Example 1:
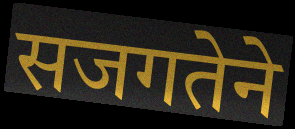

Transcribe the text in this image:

सजगतेने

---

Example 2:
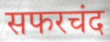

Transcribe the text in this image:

सफरचंद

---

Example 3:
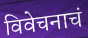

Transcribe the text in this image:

विवेचनाचं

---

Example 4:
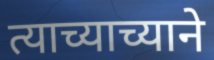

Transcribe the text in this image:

त्याच्याच्याने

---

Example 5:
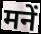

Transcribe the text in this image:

मनें